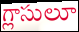
గ్లాసులూ